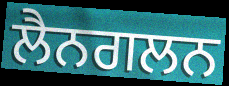
ਲੈਨਗਲਨ